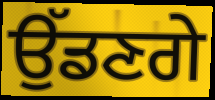
ਉੱਡਣਗੇ